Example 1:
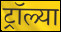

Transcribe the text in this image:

ट्रॉल्या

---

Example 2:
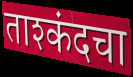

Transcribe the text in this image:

ताश्कंदचा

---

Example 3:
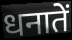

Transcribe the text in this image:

धनातें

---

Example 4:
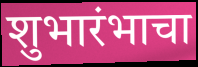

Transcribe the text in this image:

शुभारंभाचा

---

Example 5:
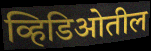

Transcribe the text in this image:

व्हिडिओतील